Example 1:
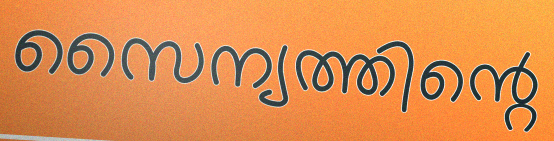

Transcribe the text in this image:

സൈന്യത്തിന്റെ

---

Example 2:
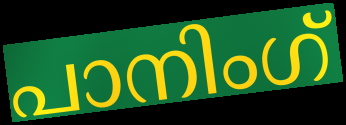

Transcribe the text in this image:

പാനിംഗ്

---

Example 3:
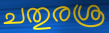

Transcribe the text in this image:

ചതുരശ്ര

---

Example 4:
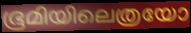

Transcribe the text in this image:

ഭൂമിയിലെത്രയോ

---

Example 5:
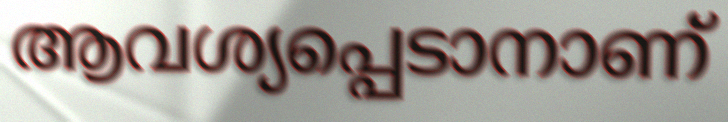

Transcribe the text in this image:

ആവശ്യപ്പെടാനാണ്